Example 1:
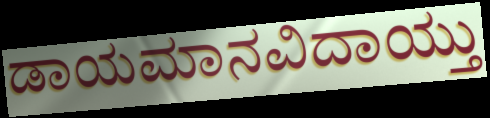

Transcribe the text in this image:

ಡಾಯಮಾನವಿದಾಯ್ತು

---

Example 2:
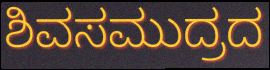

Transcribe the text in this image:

ಶಿವಸಮುದ್ರದ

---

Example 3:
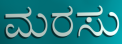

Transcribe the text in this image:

ಮರಸು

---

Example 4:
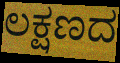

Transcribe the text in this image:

ಲಕ್ಷಣದ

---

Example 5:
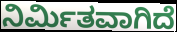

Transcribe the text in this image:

ನಿರ್ಮಿತವಾಗಿದೆ